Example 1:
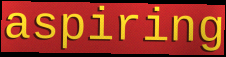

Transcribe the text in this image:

aspiring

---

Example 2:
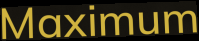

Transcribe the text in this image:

Maximum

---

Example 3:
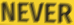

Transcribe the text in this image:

NEVER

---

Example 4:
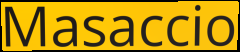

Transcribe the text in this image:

Masaccio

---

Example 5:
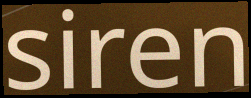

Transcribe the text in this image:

siren